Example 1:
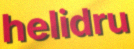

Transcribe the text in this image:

helidru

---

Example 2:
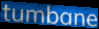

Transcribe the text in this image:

tumbane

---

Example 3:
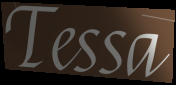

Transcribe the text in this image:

Tessa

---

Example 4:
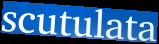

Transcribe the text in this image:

scutulata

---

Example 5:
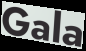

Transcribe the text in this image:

Gala